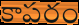
కాపరం